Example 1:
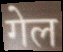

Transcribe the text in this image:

गेल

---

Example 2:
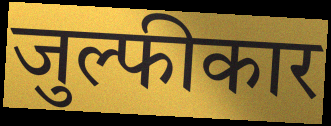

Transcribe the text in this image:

जुल्फीकार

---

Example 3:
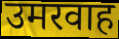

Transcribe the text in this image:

उमरवाह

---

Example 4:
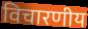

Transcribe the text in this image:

विचारणीय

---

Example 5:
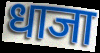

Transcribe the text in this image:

धाजा